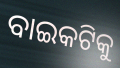
ବାଇକଟିକୁ